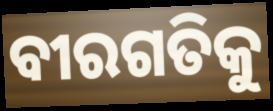
ବୀରଗତିକୁ